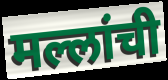
मल्लांची